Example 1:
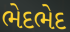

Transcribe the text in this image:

ભેદભેદ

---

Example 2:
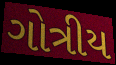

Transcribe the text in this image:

ગોત્રીય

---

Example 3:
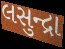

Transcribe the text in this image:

લસુન્દ્રા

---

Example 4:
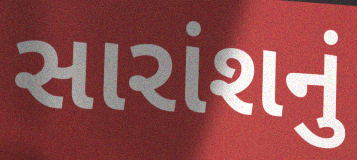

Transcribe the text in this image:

સારાંશનું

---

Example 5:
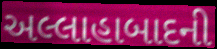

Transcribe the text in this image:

અલ્લાહાબાદની